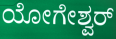
ಯೋಗೇಶ್ವರ್